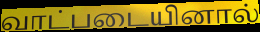
வாட்படையினால்